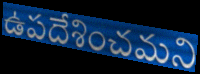
ఉపదేశించమని